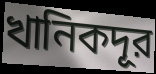
খানিকদূর